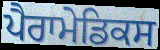
ਪੈਰਾਮੇਡਿਕਸ